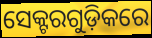
ସେକ୍ଟରଗୁଡ଼ିକରେ